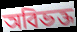
অবিভক্ত